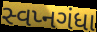
સ્વપ્નગંધા